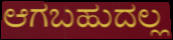
ಆಗಬಹುದಲ್ಲ